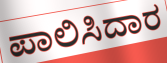
ಪಾಲಿಸಿದಾರ